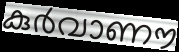
കുർവാണൗ